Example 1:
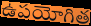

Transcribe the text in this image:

ఉపయోగిత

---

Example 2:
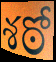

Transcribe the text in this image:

శఠో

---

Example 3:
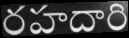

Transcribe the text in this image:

రహదారి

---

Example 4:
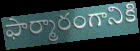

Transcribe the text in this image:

ఫార్మారంగానికి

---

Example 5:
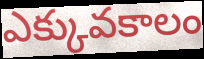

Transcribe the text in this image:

ఎక్కువకాలం